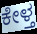
ಕೇಳ್ತ